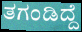
ತಗಂಡಿದ್ದೆ